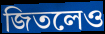
জিতলেও